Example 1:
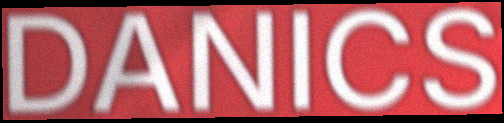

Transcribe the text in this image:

DANICS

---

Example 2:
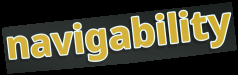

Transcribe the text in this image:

navigability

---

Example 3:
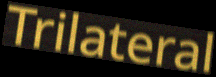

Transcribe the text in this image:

Trilateral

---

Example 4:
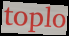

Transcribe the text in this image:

toplo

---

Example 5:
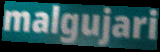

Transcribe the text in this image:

malgujari